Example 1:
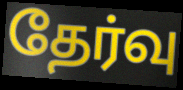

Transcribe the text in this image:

தேர்வு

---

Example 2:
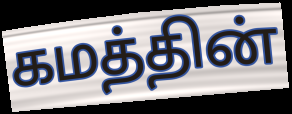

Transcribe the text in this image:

கமத்தின்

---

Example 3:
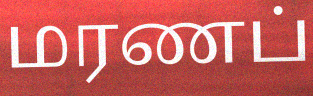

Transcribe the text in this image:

மரணப்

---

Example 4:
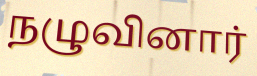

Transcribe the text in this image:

நழுவினார்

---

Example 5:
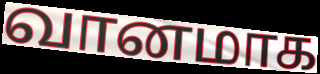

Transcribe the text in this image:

வானமாக